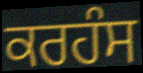
ਕਰਹੰਸ